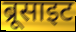
ब्रूसाइट